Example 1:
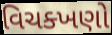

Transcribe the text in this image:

વિચક્ખણો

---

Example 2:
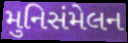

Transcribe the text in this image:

મુનિસંમેલન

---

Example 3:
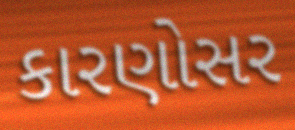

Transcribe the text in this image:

કારણોસર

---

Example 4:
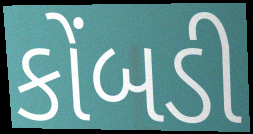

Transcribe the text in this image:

કોંબડી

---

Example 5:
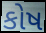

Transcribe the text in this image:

કોષ